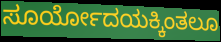
ಸೂರ್ಯೋದಯಕ್ಕಿಂತಲೂ